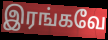
இரங்கவே